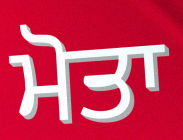
ਮੋਤਾ